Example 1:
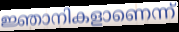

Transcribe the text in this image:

ജ്ഞാനികളാണെന്ന്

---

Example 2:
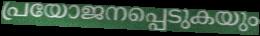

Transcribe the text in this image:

പ്രയോജനപ്പെടുകയും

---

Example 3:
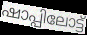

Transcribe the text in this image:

ഷാപ്പിലോട്ട്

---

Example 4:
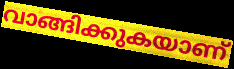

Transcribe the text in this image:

വാങ്ങിക്കുകയാണ്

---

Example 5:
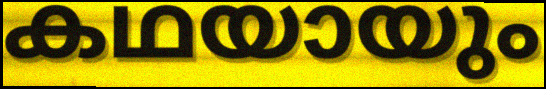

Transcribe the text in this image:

കഥയായും